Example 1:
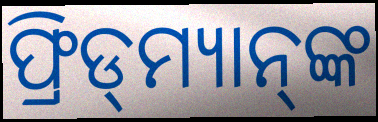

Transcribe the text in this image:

ଫ୍ରିଡ୍‌ମ୍ୟାନ୍‌ଙ୍କ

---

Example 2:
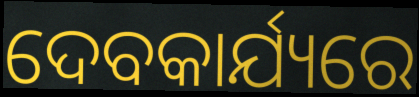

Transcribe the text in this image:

ଦେବକାର୍ଯ୍ୟରେ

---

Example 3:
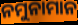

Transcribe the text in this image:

ନମୁନାମାନ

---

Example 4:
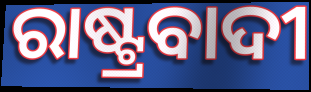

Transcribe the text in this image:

ରାଷ୍ଟ୍ରବାଦୀ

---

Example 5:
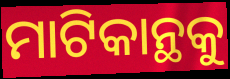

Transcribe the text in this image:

ମାଟିକାନ୍ଥକୁ